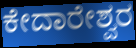
ಕೇದಾರೇಶ್ವರ